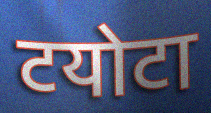
टयोटा